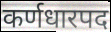
कर्णधारपद